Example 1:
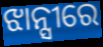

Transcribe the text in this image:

ଝାନ୍ସୀରେ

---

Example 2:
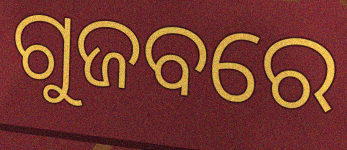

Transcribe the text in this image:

ଗୁଜବରେ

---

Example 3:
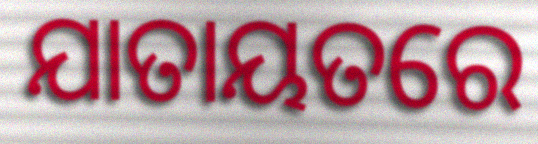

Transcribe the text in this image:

ଯାତାୟତରେ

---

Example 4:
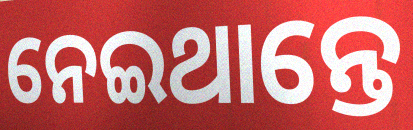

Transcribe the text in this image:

ନେଇଥାନ୍ତେ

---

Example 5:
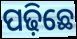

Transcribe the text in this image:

ପଢ଼ିଛେ